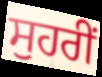
ਸੁਹਰੀਂ